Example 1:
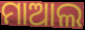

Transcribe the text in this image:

ମାଆଲ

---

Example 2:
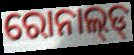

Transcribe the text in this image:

ରୋନାଲ୍‌ଡ୍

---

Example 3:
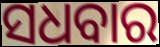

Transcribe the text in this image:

ସଧବାର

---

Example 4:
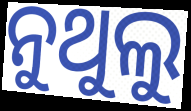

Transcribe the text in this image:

ନୁଥୁଲୁ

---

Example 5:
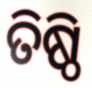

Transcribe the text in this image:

ତିଷ୍ଠି